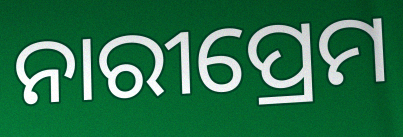
ନାରୀପ୍ରେମ